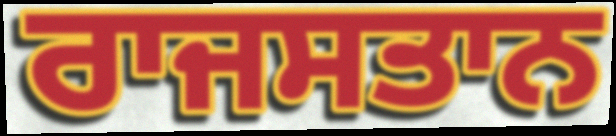
ਰਾਜਸਤਾਨ